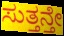
ಸುತ್ತನ್ತೇ